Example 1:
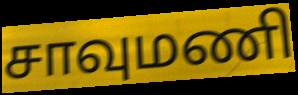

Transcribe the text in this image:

சாவுமணி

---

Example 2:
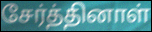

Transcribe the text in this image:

சேர்த்தினாள்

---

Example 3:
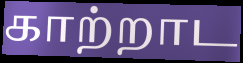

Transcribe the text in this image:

காற்றாட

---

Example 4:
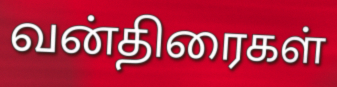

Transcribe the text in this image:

வன்திரைகள்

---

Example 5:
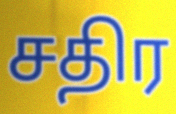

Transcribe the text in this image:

சதிர